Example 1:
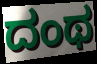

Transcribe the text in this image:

ದಂಥ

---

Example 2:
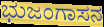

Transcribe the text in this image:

ಭುಜಂಗಾಸನ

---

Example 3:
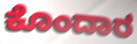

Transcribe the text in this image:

ಕೊಂದಾರ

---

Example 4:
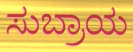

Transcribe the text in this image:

ಸುಬ್ರಾಯ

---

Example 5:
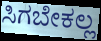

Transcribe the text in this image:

ಸಿಗಬೇಕಲ್ಲ